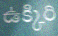
ఉక్కిరి